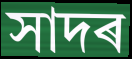
সাদৰ